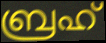
ബ്രഹ്